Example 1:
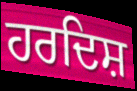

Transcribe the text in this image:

ਹਰਦਿਸ਼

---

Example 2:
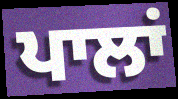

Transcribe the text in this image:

ਪਾਲਾਂ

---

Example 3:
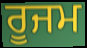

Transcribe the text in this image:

ਰੂਜਮ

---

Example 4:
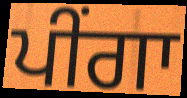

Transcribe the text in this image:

ਪੀਂਗਾ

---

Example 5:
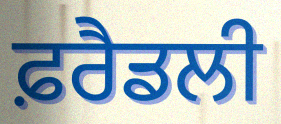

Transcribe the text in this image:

ਫ਼ਰੈਡਲੀ